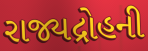
રાજ્યદ્રોહની